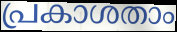
പ്രകാശതാം